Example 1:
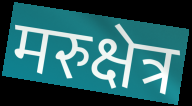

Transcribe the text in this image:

मरुक्षेत्र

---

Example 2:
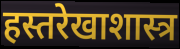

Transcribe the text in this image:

हस्तरेखाशास्त्र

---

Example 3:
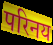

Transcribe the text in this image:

परिनय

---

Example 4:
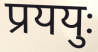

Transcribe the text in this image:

प्रययुः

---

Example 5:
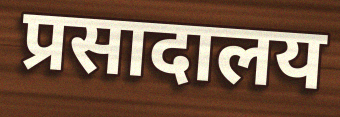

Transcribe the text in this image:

प्रसादालय